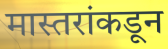
मास्तरांकडून